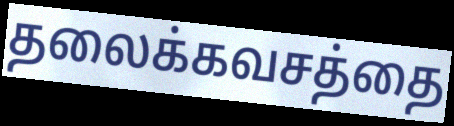
தலைக்கவசத்தை